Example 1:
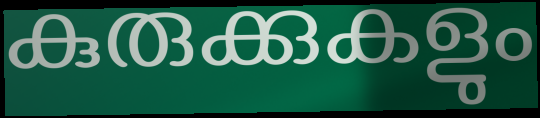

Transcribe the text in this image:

കുരുക്കുകളും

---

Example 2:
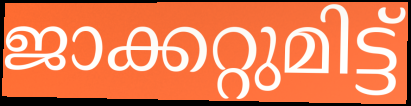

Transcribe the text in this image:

ജാക്കറ്റുമിട്ട്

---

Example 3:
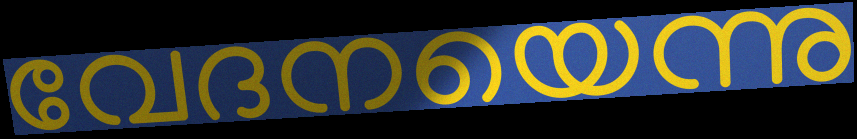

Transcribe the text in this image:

വേദനയെന്നു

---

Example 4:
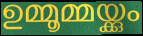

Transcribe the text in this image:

ഉമ്മൂമ്മയ്ക്കും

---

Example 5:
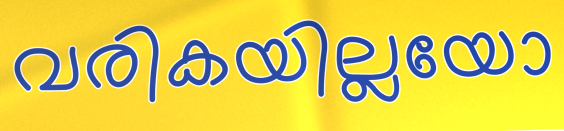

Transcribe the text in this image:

വരികയില്ലയോ